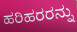
ಹರಿಹರರನ್ನು